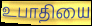
உபாதியை